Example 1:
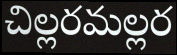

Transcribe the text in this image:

చిల్లరమల్లర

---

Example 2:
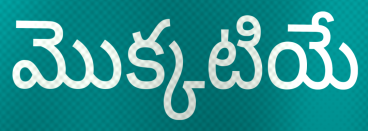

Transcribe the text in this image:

మొక్కటియే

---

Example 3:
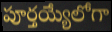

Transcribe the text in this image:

పూర్తయ్యేలోగా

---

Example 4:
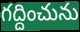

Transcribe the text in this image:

గద్దించును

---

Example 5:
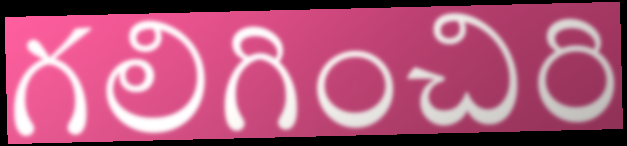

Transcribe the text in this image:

గలిగించిరి